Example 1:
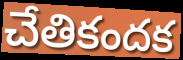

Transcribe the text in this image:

చేతికందక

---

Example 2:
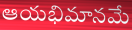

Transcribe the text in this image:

ఆయభిమానమే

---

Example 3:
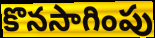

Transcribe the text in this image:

కొనసాగింపు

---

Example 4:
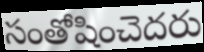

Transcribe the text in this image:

సంతోషించెదరు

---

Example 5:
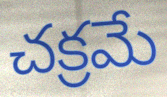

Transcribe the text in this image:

చక్రమే